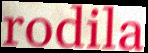
rodila